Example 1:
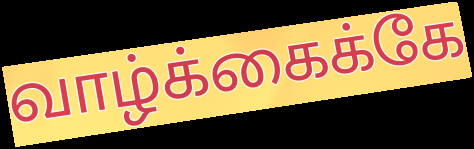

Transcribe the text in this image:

வாழ்க்கைக்கே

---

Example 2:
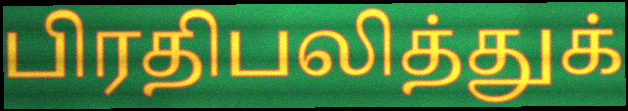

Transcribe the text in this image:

பிரதிபலித்துக்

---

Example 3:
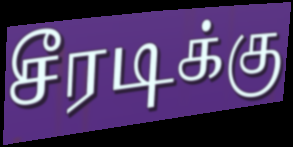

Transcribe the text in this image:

சீரடிக்கு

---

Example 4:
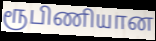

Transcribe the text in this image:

ரூபிணியான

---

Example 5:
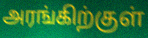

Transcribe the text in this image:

அரங்கிற்குள்